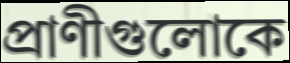
প্রাণীগুলোকে